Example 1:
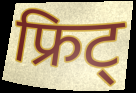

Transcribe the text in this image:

फ्रिट्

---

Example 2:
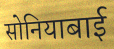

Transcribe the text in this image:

सोनियाबाई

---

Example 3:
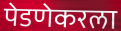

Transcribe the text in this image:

पेडणेकरला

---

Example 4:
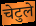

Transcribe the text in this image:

चेटुले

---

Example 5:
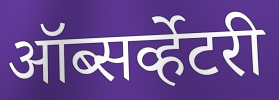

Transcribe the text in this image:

ऑब्सर्व्हेटरी